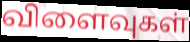
விளைவுகள்